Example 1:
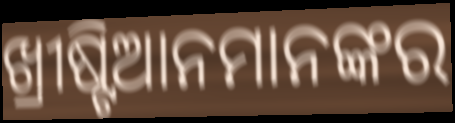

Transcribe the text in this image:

ଖ୍ରୀଷ୍ଟିଆନମାନଙ୍କର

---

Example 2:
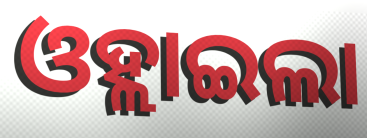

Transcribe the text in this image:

ଓହ୍ଲାଇଲା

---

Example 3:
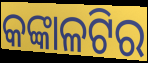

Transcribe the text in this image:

କଙ୍କାଳଟିର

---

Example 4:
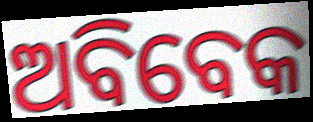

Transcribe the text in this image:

ଅବିବେକ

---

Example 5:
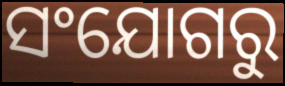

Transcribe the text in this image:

ସଂଯୋଗରୁ